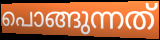
പൊങ്ങുന്നത്